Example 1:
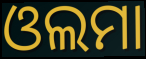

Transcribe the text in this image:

ଓଲମା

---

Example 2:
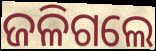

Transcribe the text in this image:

ଜଳିଗଲେ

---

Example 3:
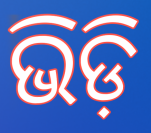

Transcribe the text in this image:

ଭିଡ଼ି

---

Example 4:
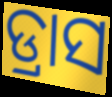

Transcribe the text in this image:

ଡ୍ରାସ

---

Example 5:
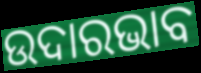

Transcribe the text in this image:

ଉଦାରଭାବ